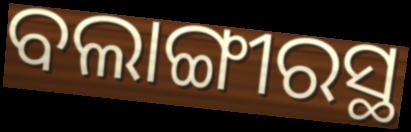
ବଲାଙ୍ଗୀରସ୍ଥ